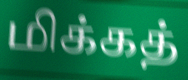
மிக்கத்